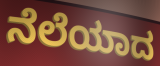
ನೆಲೆಯಾದ